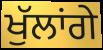
ਖੁੱਲਾਂਗੇ